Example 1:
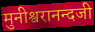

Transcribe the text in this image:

मुनीश्वरानन्दजी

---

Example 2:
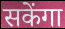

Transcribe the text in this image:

सकेंगा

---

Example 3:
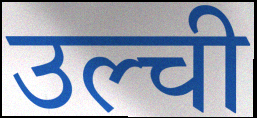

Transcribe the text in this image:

उल्ची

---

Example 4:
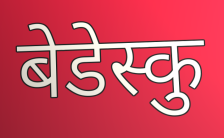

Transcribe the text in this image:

बेडेस्कु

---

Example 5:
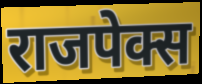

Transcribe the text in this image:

राजपेक्स